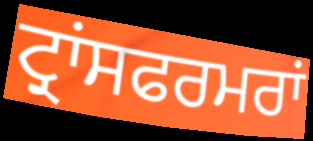
ਟ੍ਰਾਂਸਫਰਮਰਾਂ